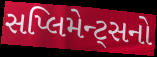
સપ્લિમેન્ટ્સનો